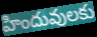
హిందువులకు